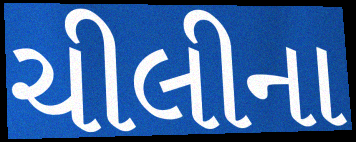
ચીલીના